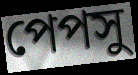
পেপসু